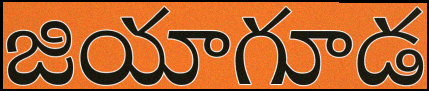
జియాగూడ